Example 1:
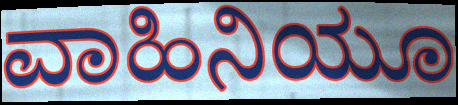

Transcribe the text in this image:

ವಾಹಿನಿಯೂ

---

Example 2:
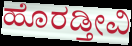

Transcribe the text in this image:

ಹೊರಡ್ತೀವಿ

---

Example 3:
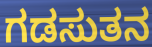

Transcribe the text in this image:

ಗಡಸುತನ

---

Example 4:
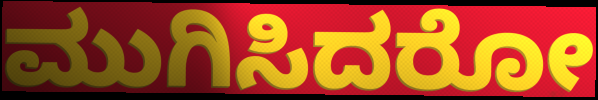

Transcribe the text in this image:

ಮುಗಿಸಿದರೋ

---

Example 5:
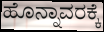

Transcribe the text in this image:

ಹೊನ್ನಾವರಕ್ಕೆ